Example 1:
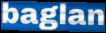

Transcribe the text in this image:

baglan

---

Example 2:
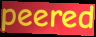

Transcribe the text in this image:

peered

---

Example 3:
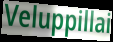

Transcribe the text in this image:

Veluppillai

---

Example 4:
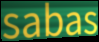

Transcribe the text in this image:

sabas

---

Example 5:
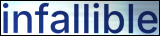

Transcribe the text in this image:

infallible